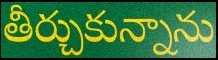
తీర్చుకున్నాను